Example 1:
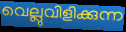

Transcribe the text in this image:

വെല്ലുവിളിക്കുന്ന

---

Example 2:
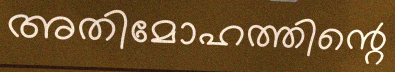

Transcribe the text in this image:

അതിമോഹത്തിന്റെ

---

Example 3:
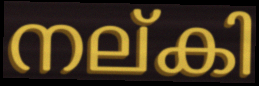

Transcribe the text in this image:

നല്‌കി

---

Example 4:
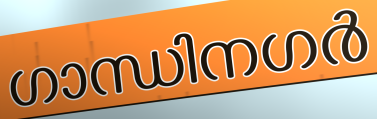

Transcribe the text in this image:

ഗാന്ധിനഗർ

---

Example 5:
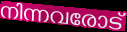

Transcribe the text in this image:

നിന്നവരോട്